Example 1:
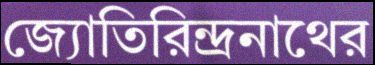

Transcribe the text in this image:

জ্যোতিরিন্দ্রনাথের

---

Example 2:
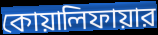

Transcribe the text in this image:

কোয়ালিফায়ার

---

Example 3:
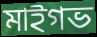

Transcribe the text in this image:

মাইগভ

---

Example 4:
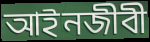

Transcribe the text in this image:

আইনজীবী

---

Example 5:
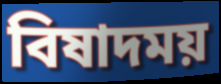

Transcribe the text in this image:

বিষাদময়